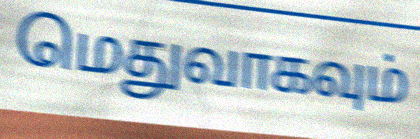
மெதுவாகவும்